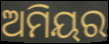
ଅମିୟର